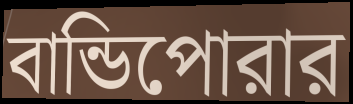
বান্ডিপোরার